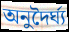
অনুদৈর্ঘ্য